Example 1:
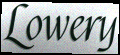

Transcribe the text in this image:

Lowery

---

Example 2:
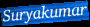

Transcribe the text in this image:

Suryakumar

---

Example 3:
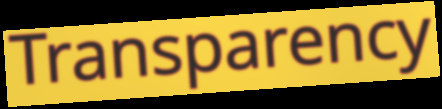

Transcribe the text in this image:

Transparency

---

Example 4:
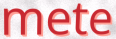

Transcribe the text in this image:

mete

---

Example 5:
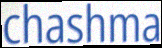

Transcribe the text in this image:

chashma